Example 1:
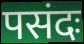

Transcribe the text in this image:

पसंदः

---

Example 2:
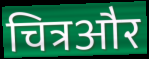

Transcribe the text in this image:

चित्रऔर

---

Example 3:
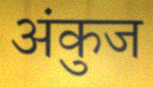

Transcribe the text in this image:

अंकुज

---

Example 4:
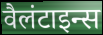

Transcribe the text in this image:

वैलंटाइन्स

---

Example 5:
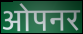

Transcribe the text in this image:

ओपनर